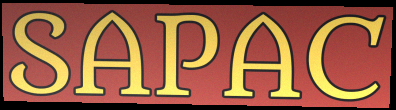
SAPAC